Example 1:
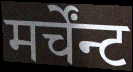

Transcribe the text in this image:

मर्चेंन्ट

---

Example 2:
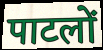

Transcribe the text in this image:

पाटलों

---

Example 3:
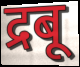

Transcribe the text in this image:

द्रबू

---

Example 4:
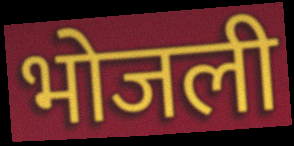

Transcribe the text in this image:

भोजली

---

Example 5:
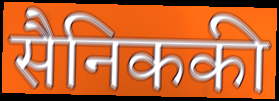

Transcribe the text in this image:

सैनिककी